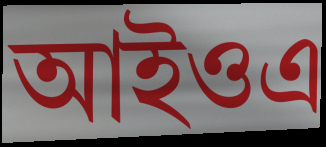
আইওএ